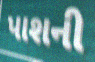
પાશની